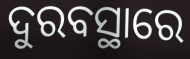
ଦୁରବସ୍ଥାରେ